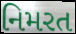
નિમરત